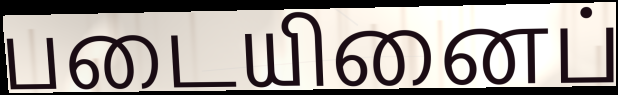
படையினைப்